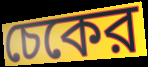
চেকের